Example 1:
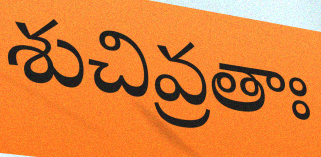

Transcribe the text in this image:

శుచివ్రతాః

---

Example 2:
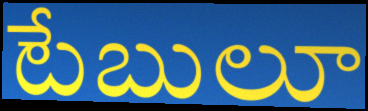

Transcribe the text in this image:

టేబులూ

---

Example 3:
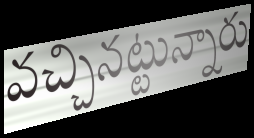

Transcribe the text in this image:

వచ్చినట్టున్నారు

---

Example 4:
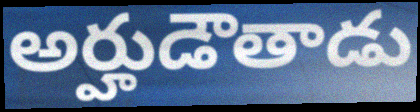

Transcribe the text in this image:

అర్హుడౌతాడు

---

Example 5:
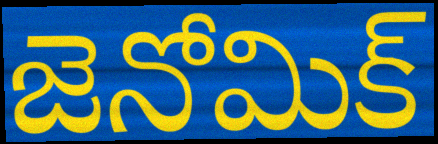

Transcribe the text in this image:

జెనోమిక్